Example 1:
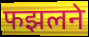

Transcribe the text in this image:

फझलने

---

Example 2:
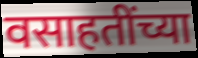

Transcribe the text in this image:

वसाहतींच्या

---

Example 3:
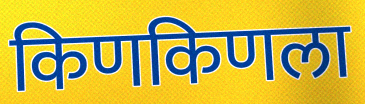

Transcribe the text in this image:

किणकिणला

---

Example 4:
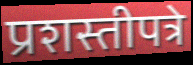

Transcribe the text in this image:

प्रशस्तीपत्रे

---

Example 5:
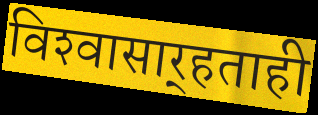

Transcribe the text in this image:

विश्वासार्हताही